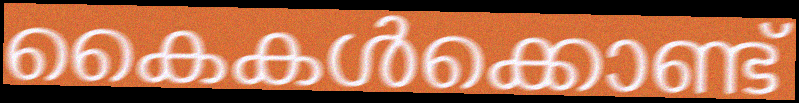
കൈകൾക്കൊണ്ട്